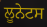
ਲੂਨੇਟਸ